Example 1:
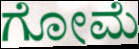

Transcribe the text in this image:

ಗೋಮೆ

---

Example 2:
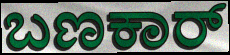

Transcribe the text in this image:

ಬಣಕಾರ್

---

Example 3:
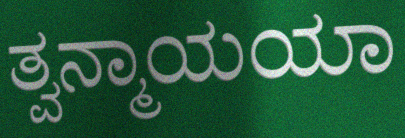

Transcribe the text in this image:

ತ್ವನ್ಮಾಯಯಾ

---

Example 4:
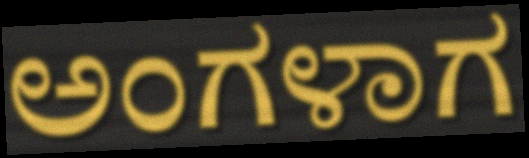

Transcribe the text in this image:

ಅಂಗಳಾಗ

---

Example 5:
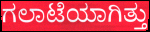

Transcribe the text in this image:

ಗಲಾಟೆಯಾಗಿತ್ತು